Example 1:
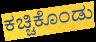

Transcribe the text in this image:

ಕಚ್ಚಿಕೊಂಡು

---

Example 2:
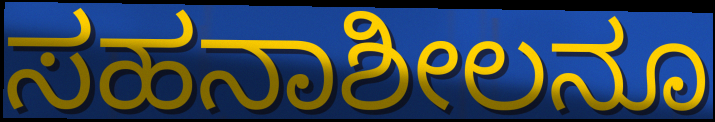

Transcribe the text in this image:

ಸಹನಾಶೀಲನೂ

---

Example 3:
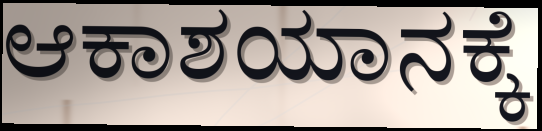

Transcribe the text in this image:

ಆಕಾಶಯಾನಕ್ಕೆ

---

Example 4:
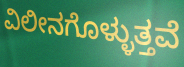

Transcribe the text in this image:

ವಿಲೀನಗೊಳ್ಳುತ್ತವೆ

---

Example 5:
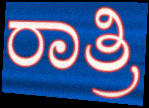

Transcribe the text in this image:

ರಾತ್ರಿ